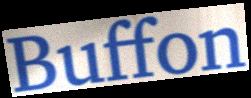
Buffon